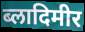
ब्लादिमीर